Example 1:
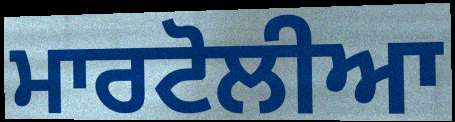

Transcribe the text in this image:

ਮਾਰਟੋਲੀਆ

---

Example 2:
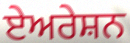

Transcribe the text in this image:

ਏਅਰੇਸ਼ਨ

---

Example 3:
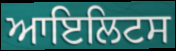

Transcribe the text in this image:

ਆਇਲਿਟਸ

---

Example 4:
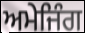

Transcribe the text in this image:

ਅਮੇਜਿੰਗ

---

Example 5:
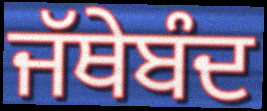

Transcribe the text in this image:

ਜੱਥੇਬੰਦ